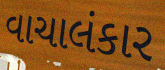
વાચાલંકાર